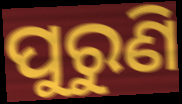
ପୁରୁଣି